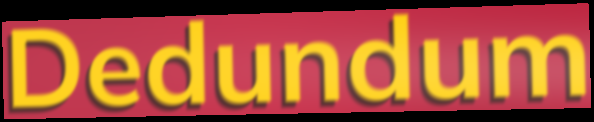
Dedundum